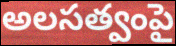
అలసత్వంపై